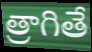
త్రాగితే